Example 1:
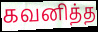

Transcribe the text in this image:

கவனித்த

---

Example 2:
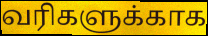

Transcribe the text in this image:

வரிகளுக்காக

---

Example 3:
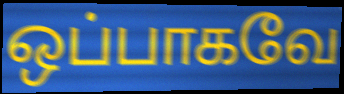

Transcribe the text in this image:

ஒப்பாகவே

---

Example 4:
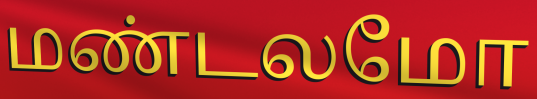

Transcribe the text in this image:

மண்டலமோ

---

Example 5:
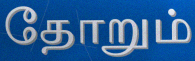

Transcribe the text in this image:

தோறும்